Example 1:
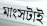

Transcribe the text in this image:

মাংসটাই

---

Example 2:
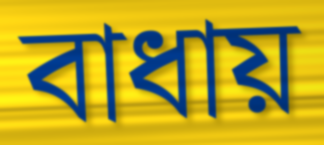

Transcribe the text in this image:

বাধায়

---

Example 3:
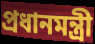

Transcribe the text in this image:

প্রধানমন্ত্রী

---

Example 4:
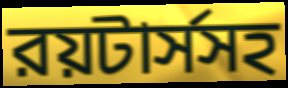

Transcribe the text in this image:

রয়টার্সসহ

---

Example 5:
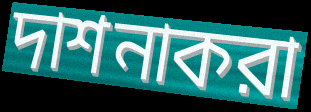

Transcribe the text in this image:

দাশনাকরা